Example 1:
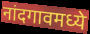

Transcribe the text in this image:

नांदगावमध्ये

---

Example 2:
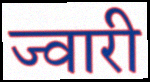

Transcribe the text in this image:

ज्वारी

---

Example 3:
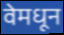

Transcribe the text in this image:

वेमधून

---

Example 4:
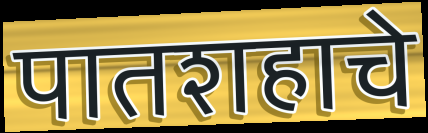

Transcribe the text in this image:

पातशहाचे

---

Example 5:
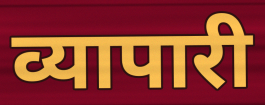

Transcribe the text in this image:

व्यापारी